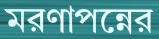
মরণাপন্নের